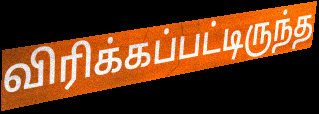
விரிக்கப்பட்டிருந்த